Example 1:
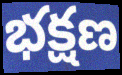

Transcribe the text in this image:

భక్షణ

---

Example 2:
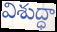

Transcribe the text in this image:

విశుద్ధా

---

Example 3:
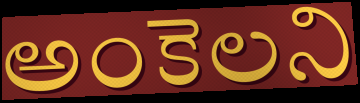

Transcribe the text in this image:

అంకెలని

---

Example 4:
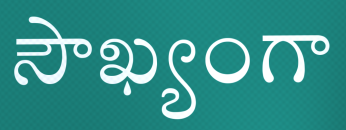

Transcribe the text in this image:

సౌఖ్యంగా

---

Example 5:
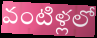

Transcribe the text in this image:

వంటిళ్లలో